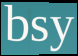
bsy